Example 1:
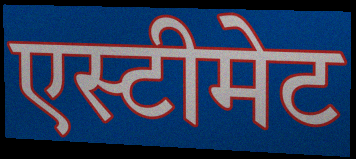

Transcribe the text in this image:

एस्‍टीमेट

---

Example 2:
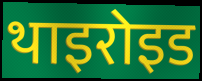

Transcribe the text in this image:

थाइरोइड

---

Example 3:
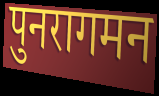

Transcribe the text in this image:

पुनरागमन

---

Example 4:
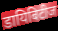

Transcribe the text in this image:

डायिबिटीज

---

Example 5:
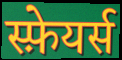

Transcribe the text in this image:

स्फ़ेयर्स